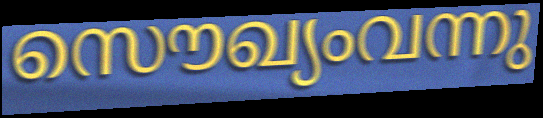
സൌഖ്യംവന്നു